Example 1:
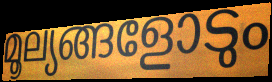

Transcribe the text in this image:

മൂല്യങ്ങളോടും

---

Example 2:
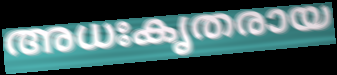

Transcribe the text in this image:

അധഃകൃതരായ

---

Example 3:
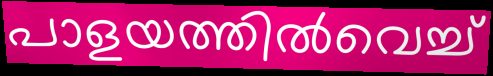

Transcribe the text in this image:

പാളയത്തിൽവെച്ച്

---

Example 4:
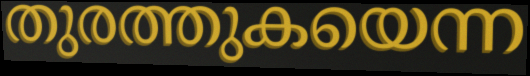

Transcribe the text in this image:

തുരത്തുകയെന്ന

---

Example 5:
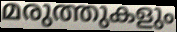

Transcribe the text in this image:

മരുത്തുകളും